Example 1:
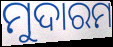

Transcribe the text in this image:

ମୁଦାରମ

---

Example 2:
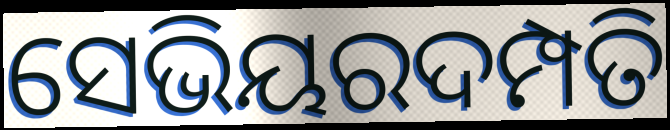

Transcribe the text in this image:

ସେଭିୟରଦମ୍ପତି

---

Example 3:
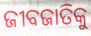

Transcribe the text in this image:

ଜୀବଜାତିକୁ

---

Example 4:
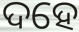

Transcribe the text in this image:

ଦହେ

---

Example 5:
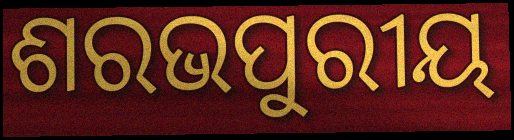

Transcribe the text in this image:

ଶରଭପୁରୀୟ